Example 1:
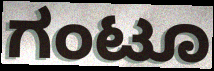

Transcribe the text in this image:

ಗಂಟೂ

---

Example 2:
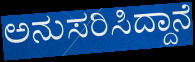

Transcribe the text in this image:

ಅನುಸರಿಸಿದ್ದಾನೆ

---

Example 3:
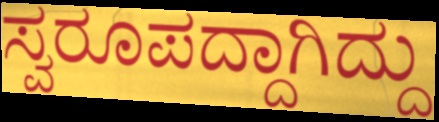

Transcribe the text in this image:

ಸ್ವರೂಪದ್ದಾಗಿದ್ದು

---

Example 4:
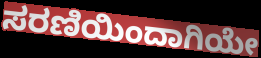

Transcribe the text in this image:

ಸರಣಿಯಿಂದಾಗಿಯೇ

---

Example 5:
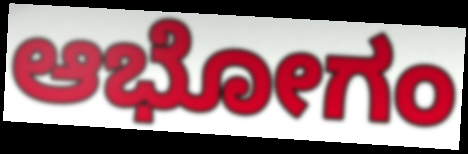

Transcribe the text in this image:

ಆಭೋಗಂ